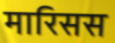
मारिसस